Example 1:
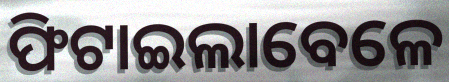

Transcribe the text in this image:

ଫିଟାଇଲାବେଳେ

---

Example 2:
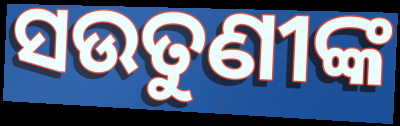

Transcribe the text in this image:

ସଉତୁଣୀଙ୍କ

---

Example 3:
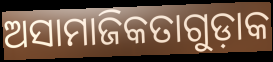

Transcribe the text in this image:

ଅସାମାଜିକତାଗୁଡ଼ାକ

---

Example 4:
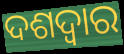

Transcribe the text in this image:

ଦଶଦ୍ୱାର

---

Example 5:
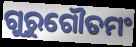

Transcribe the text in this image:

ଗୁରୁଗୌତମଂ